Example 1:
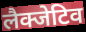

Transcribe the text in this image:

लैक्जेटिव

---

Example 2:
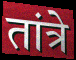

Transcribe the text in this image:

तांत्रे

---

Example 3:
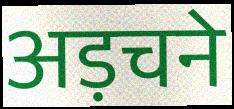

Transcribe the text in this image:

अड़चने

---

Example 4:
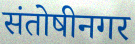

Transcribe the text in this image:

संतोषीनगर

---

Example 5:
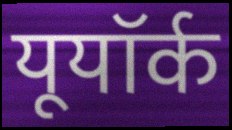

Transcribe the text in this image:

यूयॉर्क